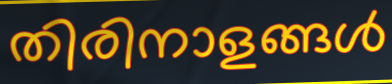
തിരിനാളങ്ങൾ